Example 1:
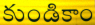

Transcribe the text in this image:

కుండికాం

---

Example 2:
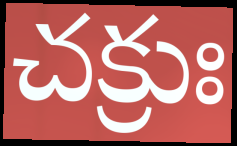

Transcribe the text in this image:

చక్రుః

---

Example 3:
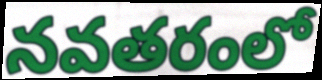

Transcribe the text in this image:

నవతరంలో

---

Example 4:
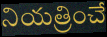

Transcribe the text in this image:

నియత్రించే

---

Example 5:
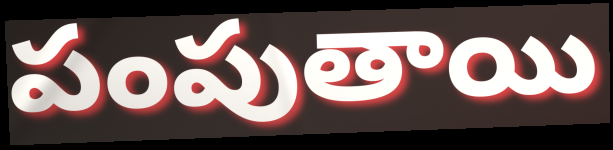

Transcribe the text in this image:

పంపుతాయి